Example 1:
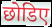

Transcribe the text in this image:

छोडिए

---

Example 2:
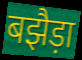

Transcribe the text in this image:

बझैड़ा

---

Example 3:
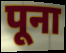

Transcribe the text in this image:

पूना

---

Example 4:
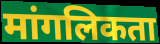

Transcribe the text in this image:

मांगलिकता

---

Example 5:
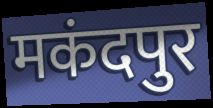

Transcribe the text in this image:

मकंदपुर